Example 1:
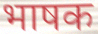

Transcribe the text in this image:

भाषक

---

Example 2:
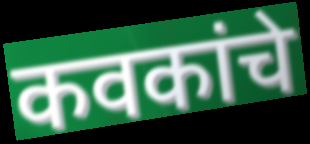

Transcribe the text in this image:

कवकांचे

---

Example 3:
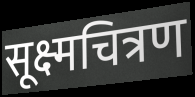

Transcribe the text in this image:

सूक्ष्मचित्रण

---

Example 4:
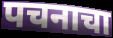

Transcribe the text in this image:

पचनाचा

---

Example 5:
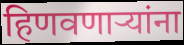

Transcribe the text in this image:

हिणवणाऱ्यांना